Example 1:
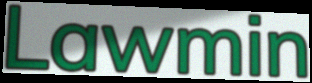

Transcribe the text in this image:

Lawmin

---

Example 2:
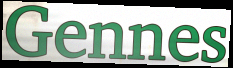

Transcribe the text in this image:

Gennes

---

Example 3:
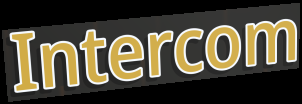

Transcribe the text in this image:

Intercom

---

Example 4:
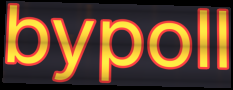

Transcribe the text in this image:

bypoll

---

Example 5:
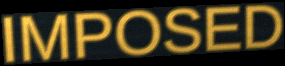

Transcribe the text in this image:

IMPOSED